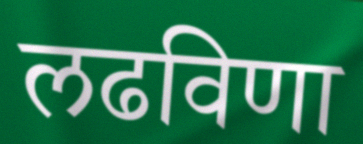
लढविणा